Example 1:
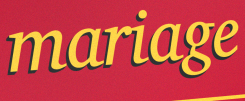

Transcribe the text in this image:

mariage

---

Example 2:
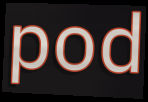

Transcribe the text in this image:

pod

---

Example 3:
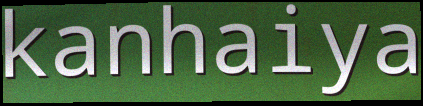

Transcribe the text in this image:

kanhaiya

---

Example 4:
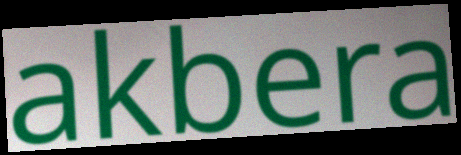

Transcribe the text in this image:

akbera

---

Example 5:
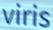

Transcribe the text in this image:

viris